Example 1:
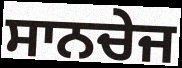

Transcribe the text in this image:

ਸਾਨਚੇਜ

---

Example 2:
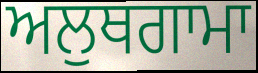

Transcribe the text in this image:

ਅਲੁਥਗਾਮਾ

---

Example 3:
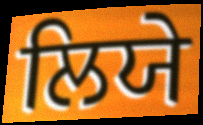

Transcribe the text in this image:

ਲਿਯੇ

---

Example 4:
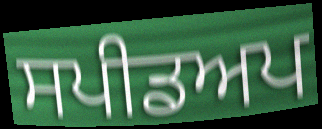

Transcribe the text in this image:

ਸਪੀਡਅਪ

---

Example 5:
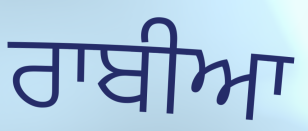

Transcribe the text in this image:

ਰਾਬੀਆ